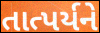
તાત્પર્યને